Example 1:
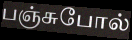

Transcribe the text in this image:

பஞ்சுபோல்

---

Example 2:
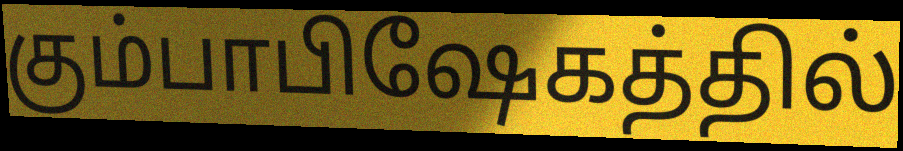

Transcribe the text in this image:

கும்பாபிஷேகத்தில்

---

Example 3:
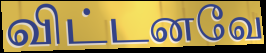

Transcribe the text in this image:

விட்டனவே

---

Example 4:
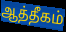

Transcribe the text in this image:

ஆத்தீகம்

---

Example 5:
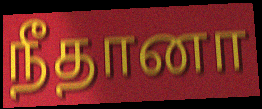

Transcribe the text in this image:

நீதானா